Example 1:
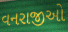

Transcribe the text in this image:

વનરાજીઓ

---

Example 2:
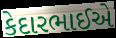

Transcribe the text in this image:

કેદારભાઈએ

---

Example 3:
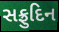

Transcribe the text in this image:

સફ્રુદિન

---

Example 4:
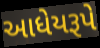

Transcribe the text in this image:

આધેયરૂપે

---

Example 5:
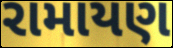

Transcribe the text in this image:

રામાયણ